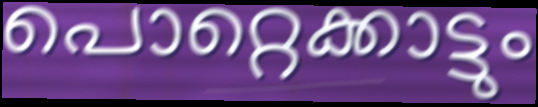
പൊറ്റെക്കാട്ടും